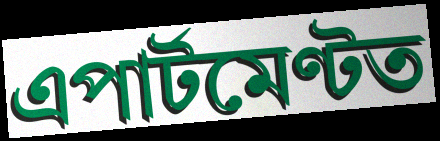
এপাৰ্টমেণ্টত